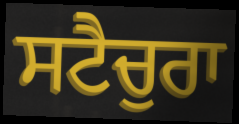
ਸਟੈਚੁਰਾ